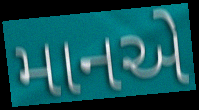
માનએ